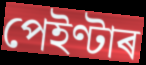
পেইণ্টাৰ